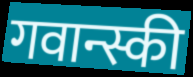
गवान्स्की